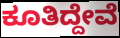
ಕೂತಿದ್ದೇವೆ